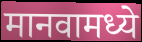
मानवामध्ये